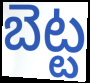
బెట్ట